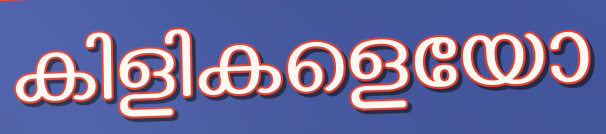
കിളികളെയോ